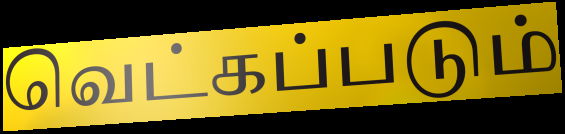
வெட்கப்படும்